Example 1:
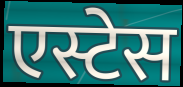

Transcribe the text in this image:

एस्टेस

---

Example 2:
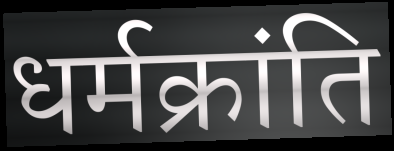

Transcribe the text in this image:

धर्मक्रांति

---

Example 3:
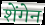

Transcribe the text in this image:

शेंगेन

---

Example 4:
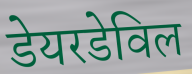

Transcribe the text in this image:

डेयरडेविल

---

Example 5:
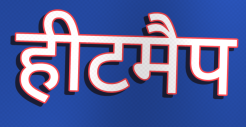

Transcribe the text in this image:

हीटमैप